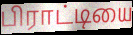
பிராட்டியை